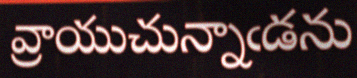
వ్రాయుచున్నాఁడను